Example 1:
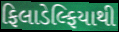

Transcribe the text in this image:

ફિલાડેલ્ફિયાથી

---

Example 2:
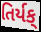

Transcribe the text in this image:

તિર્યક્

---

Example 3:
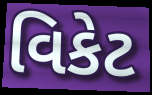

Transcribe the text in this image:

વિકેટ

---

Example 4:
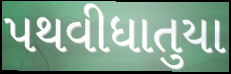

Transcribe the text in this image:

પથવીધાતુયા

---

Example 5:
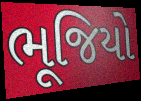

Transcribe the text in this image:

ભૂજિયો